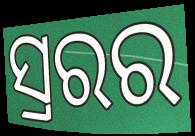
ସ୍ରରର